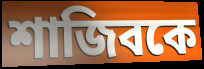
শাজিবকে